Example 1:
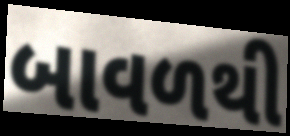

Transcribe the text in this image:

બાવળથી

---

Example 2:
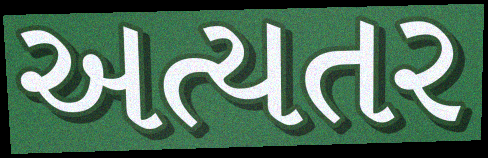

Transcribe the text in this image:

અત્યતર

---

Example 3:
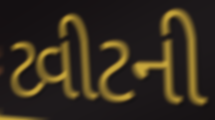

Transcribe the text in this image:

ટ્વીટની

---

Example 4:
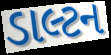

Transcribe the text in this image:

ડાલ્ટન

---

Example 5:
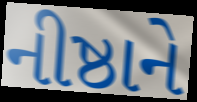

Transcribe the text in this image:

નીષ્ઠાને